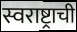
स्वराष्ट्राची